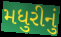
મધુરીનું